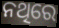
ନଥିରେ